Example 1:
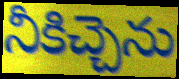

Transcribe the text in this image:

నీకిచ్చెను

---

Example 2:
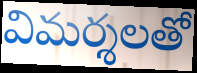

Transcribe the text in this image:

విమర్శలతో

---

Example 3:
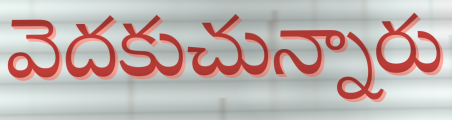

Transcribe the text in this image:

వెదకుచున్నారు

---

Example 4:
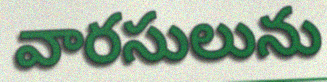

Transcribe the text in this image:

వారసులును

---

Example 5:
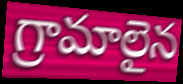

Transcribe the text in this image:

గ్రామాలైన